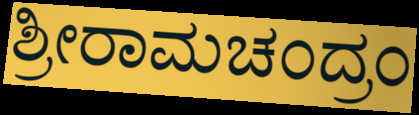
ಶ್ರೀರಾಮಚಂದ್ರಂ